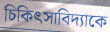
চিকিৎসাবিদ্যাকে